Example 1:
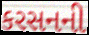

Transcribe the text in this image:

કરસનની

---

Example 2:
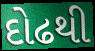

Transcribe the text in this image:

દોઢથી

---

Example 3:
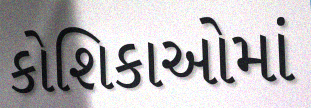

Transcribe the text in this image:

કોશિકાઓમાં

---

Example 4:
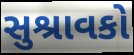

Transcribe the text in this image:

સુશ્રાવકો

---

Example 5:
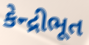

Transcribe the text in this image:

કેન્દ્રીભૂત